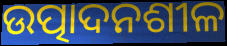
ଉତ୍ପାଦନଶୀଳ